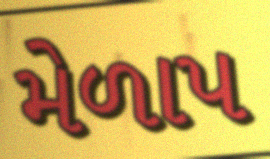
મેળાપ